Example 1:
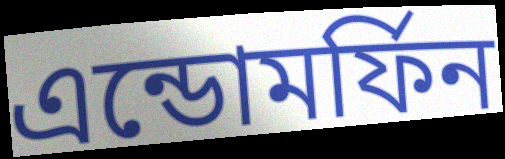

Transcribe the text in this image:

এন্ডোমর্ফিন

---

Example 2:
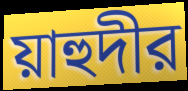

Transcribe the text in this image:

য়াহুদীর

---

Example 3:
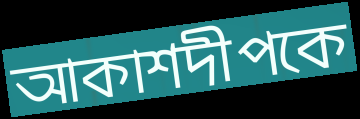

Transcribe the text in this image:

আকাশদীপকে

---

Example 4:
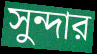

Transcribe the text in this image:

সুন্দার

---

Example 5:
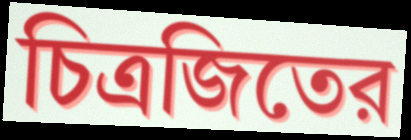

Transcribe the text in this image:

চিত্রজিতের